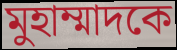
মুহাম্মাদকে